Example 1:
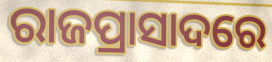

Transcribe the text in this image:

ରାଜପ୍ରାସାଦରେ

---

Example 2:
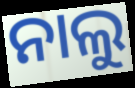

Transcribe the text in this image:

ନାଲୁ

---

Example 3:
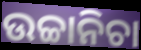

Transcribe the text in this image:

ଉଚ୍ଚାନିଚା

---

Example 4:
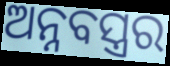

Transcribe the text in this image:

ଅନ୍ନବସ୍ତ୍ରର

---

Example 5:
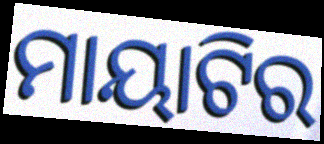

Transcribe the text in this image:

ମାୟାଟିର